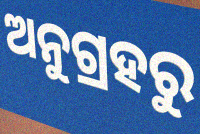
ଅନୁଗ୍ରହରୁ